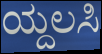
ಯ್ದಲಸಿ